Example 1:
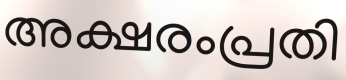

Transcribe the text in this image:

അക്ഷരംപ്രതി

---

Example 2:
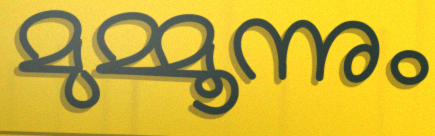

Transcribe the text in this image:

മുമ്മൂന്നും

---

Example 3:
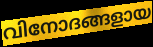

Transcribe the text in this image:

വിനോദങ്ങളായ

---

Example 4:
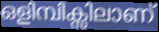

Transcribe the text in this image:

ഒളിമ്പിക്സിലാണ്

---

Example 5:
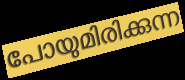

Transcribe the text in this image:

പോയുമിരിക്കുന്ന